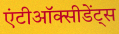
एंटीऑक्सीडेंट्स